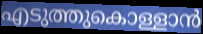
എടുത്തുകൊള്ളാൻ